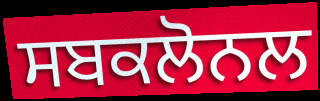
ਸਬਕਲੋਨਲ